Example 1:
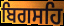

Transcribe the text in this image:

ਬਿਗਸਹਿ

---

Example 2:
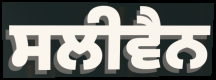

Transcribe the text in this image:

ਸਲੀਵੈਨ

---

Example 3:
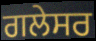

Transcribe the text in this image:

ਗਲੇਸਰ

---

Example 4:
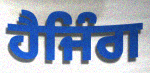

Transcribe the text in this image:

ਹੈਜਿੰਗ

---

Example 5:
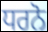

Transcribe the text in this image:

ਧਰਨੋ